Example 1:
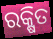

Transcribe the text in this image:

ରକ୍ଷିତ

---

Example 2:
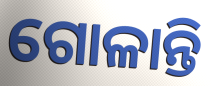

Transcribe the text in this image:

ଗୋଳାନ୍ତି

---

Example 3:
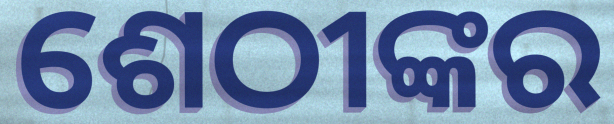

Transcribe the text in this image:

ଶେଠୀଙ୍କର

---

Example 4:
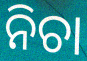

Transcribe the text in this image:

ନିଚା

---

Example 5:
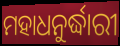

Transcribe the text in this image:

ମହାଧନୁର୍ଦ୍ଧାରୀ